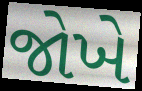
જોખે